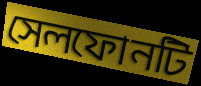
সেলফোনটি